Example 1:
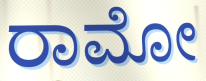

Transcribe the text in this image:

ರಾಮೋ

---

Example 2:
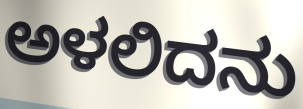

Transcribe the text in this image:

ಅಳಲಿದನು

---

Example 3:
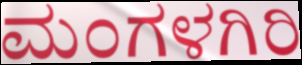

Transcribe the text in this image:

ಮಂಗಳಗಿರಿ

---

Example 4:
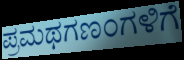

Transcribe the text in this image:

ಪ್ರಮಥಗಣಂಗಳಿಗೆ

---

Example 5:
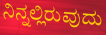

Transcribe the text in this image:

ನಿನ್ನಲ್ಲಿರುವುದು